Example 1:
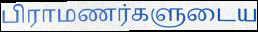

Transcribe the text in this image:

பிராமணர்களுடைய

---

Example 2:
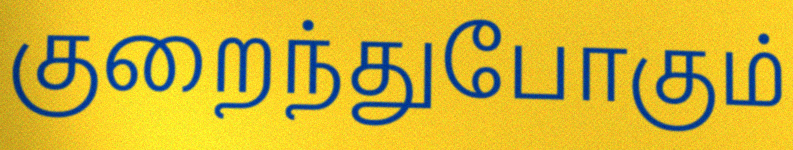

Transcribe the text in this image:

குறைந்துபோகும்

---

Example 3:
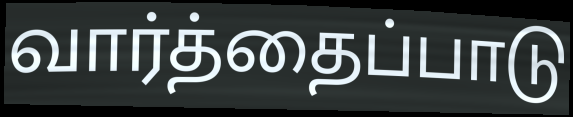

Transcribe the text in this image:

வார்த்தைப்பாடு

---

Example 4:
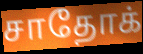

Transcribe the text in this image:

சாதோக்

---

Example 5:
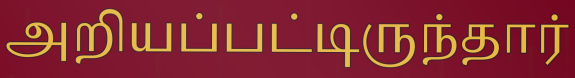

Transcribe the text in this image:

அறியப்பட்டிருந்தார்